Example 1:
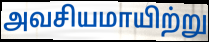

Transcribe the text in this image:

அவசியமாயிற்று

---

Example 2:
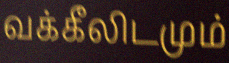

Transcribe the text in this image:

வக்கீலிடமும்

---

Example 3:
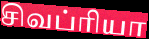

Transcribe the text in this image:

சிவப்ரியா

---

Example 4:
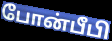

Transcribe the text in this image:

போன்பீபி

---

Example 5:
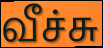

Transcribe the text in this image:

வீச்சு